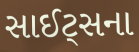
સાઈટ્સના